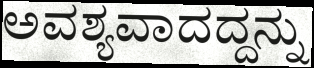
ಅವಶ್ಯವಾದದ್ದನ್ನು